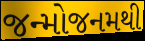
જન્મોજનમથી